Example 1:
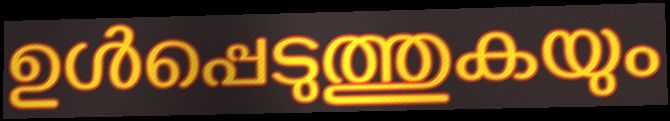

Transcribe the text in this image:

ഉൾപ്പെടുത്തുകയും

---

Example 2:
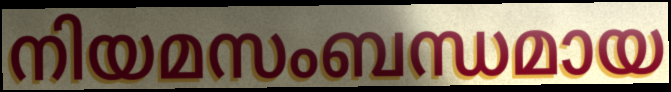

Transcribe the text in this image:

നിയമസംബന്ധമായ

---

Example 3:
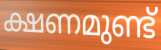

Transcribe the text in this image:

ക്ഷണമുണ്ട്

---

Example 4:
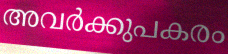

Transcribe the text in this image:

അവർക്കുപകരം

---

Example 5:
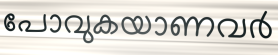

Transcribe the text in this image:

പോവുകയാണവർ